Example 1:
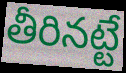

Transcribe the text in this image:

తీరినట్టే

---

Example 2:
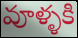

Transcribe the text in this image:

వూళ్ళకి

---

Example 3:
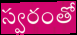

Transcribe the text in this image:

స్వరంతో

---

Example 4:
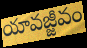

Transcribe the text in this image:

యావజ్జీవం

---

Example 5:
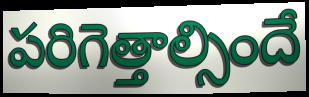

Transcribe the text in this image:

పరిగెత్తాల్సిందే